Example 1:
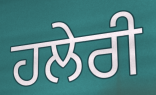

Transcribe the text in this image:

ਹਲੇਰੀ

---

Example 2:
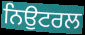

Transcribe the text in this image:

ਨਿਉਟਰਲ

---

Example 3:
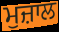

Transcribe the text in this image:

ਮੁਜ਼ਾਲ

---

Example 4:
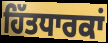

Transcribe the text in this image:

ਹਿੱਤਧਾਰਕਾਂ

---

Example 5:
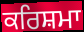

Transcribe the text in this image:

ਕਰਿਸ਼ਮਾ